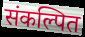
संकल्पित